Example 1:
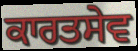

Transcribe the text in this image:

ਕਾਰਤਸੇਵ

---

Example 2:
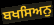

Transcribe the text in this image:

ਬਖਸਿਅਨੁ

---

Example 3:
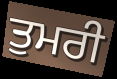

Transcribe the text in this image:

ਤੁਮਰੀ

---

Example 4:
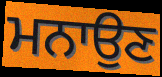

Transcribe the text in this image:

ਮਨਾਉਣ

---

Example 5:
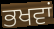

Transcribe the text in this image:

ਭਖਵਾਂ